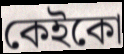
কেইকো